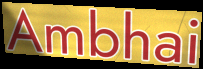
Ambhai